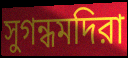
সুগন্ধমদিরা